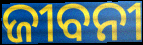
ଜୀବନୀ